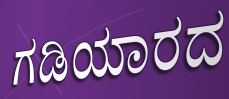
ಗಡಿಯಾರದ